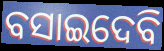
ବସାଇଦେବି